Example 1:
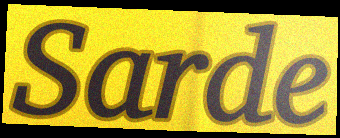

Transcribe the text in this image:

Sarde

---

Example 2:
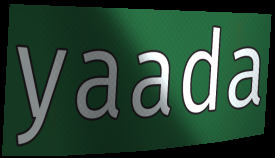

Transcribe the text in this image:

yaada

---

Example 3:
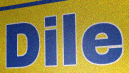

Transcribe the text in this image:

Dile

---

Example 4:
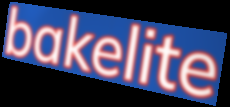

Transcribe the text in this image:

bakelite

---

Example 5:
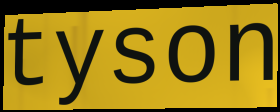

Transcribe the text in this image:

tyson